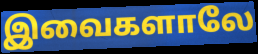
இவைகளாலே